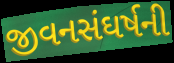
જીવનસંઘર્ષની